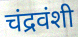
चंद्रवंशी